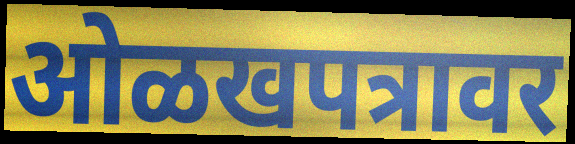
ओळखपत्रावर